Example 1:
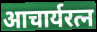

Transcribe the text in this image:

आचार्यरत्न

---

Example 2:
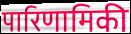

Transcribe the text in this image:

पारिणामिकी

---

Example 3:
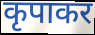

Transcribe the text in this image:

कृपाकर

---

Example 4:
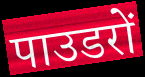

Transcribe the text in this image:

पाउडरों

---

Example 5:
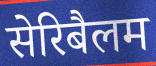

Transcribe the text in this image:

सेरिबैलम